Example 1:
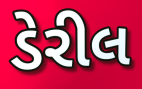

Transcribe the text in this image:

ડેરીલ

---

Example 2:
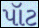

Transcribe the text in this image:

પૉટ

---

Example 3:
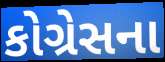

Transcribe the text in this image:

કોગ્રેસના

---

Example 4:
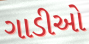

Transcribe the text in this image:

ગાડીઓ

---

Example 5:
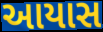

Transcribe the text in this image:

આયાસ